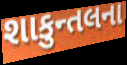
શાકુન્તલના